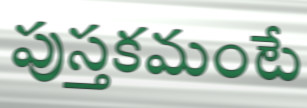
పుస్తకమంటే